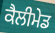
ਕੈਲੀਮੇਡ